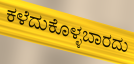
ಕಳೆದುಕೊಳ್ಳಬಾರದು